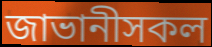
জাভানীসকল